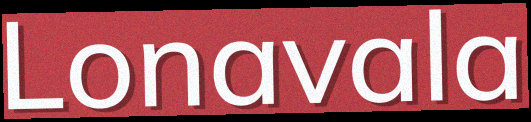
Lonavala